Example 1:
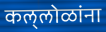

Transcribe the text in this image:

कल्लोळांना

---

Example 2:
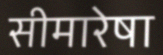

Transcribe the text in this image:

सीमारेषा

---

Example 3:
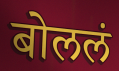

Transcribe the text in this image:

बोललं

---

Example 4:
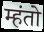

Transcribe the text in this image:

म्हंतो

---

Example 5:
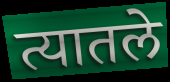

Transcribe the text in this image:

त्यातले